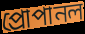
প্রোপানল